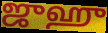
ஜுஹு